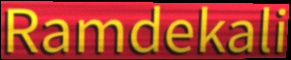
Ramdekali